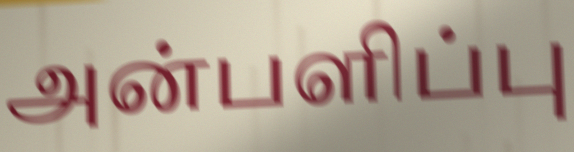
அன்பளிப்பு